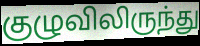
குழுவிலிருந்து